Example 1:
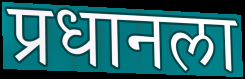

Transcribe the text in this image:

प्रधानला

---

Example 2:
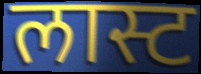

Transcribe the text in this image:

लास्ट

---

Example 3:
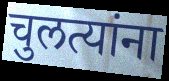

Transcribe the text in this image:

चुलत्यांना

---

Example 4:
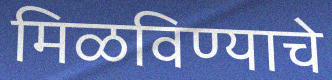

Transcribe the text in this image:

मिळविण्याचे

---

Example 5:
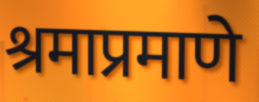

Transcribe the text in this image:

श्रमाप्रमाणे